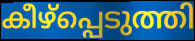
കീഴ്പ്പെടുത്തി